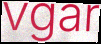
vgar